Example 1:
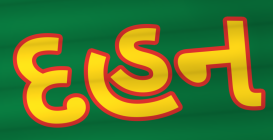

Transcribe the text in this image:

દહન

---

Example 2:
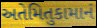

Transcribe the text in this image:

અતેમિતુકામાનં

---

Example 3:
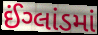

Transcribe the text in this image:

ઈંગ્લાંડમાં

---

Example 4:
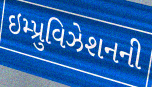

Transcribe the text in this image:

ઇમ્પ્રુવિઝેશનની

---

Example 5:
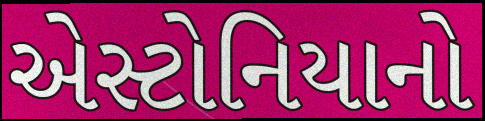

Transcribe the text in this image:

એસ્ટોનિયાનો